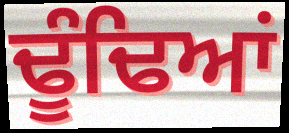
ਢੂੰਢਿਆਂ